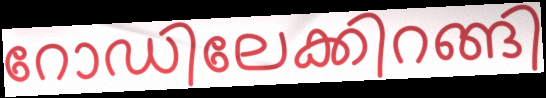
റോഡിലേക്കിറങ്ങി